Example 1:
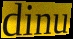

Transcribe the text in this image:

dinu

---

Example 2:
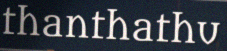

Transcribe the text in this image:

thanthathu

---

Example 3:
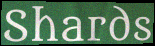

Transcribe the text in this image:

Shards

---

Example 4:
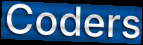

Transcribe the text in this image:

Coders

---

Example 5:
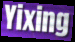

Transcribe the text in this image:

Yixing